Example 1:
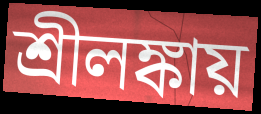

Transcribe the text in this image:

শ্রীলঙ্কায়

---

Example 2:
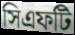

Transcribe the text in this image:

সিএফটি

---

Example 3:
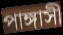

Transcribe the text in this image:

পাঙ্গাসী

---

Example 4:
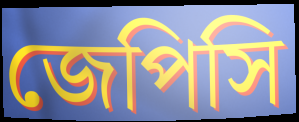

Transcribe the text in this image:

জেপিসি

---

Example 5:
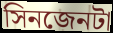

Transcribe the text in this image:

সিনজেনটা